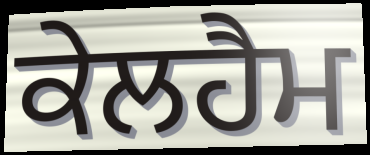
ਕੇਲਹੈਮ